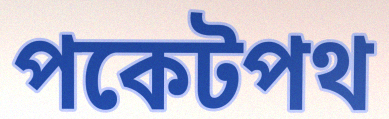
পকেটপথ